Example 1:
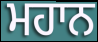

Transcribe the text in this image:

ਮਹਾਨ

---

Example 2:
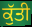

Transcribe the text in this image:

ਕੁੱਤੀ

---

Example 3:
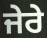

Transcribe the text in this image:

ਜੇਰੇ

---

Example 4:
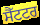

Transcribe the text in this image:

ਸੈੱਟਟਰ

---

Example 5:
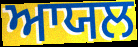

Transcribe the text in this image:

ਆਯਲ